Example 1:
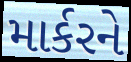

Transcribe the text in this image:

માર્કરને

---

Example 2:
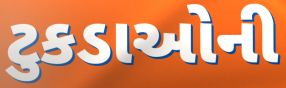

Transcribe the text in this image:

ટુકડાઓની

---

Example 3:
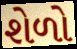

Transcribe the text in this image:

શેળો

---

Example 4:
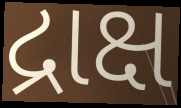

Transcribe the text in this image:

દ્રાક્ષ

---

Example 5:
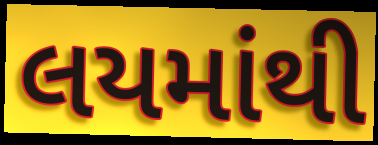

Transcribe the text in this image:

લયમાંથી